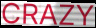
CRAZY